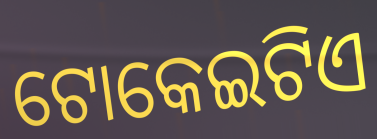
ଟୋକେଇଟିଏ